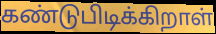
கண்டுபிடிக்கிறாள்